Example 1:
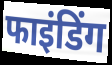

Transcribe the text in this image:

फाइंडिंग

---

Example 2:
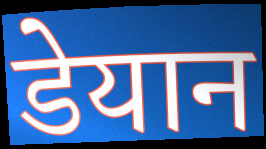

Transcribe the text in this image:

डेयान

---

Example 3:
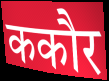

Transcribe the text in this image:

ककौर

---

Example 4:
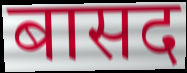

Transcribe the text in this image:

बासद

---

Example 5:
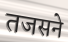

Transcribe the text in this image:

तजसने